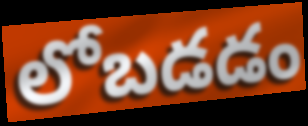
లోబడడం